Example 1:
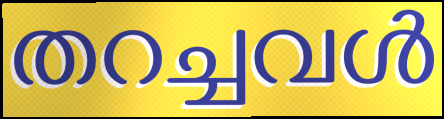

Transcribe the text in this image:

തറച്ചവൾ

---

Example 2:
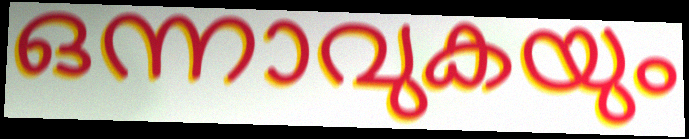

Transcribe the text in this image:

ഒന്നാവുകയും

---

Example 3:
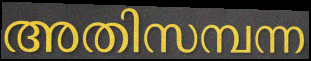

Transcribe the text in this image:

അതിസമ്പന്ന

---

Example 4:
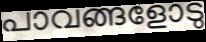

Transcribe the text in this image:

പാവങ്ങളോടു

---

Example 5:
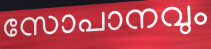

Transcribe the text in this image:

സോപാനവും